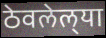
ठेवलेल्या